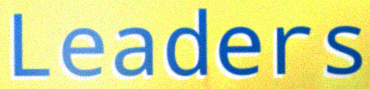
Leaders